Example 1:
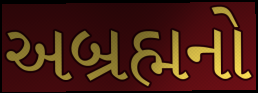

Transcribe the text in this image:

અબ્રહ્મનો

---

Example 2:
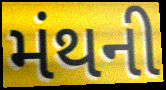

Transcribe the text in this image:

મંથની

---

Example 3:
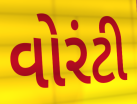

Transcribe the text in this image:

વોરંટી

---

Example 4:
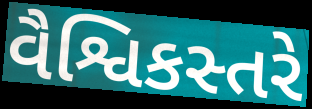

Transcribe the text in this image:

વૈશ્વિકસ્તરે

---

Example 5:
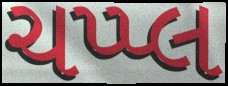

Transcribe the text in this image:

ચપ્પ્લ